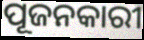
ପୂଜନକାରୀ